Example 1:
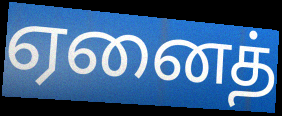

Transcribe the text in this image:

ஏனைத்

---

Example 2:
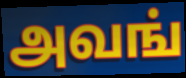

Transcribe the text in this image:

அவங்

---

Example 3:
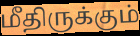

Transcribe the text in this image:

மீதிருக்கும்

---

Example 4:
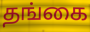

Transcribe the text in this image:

தங்கை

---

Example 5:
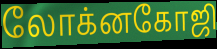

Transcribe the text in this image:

லோக்னகோஜி